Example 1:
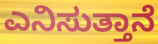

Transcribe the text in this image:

ಎನಿಸುತ್ತಾನೆ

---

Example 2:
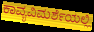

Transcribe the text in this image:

ಕಾವ್ಯವಿಮರ್ಶೆಯಲ್ಲಿ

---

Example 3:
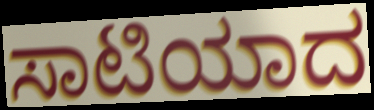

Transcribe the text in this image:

ಸಾಟಿಯಾದ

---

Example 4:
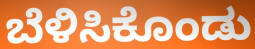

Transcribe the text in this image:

ಬೆಳಿಸಿಕೊಂಡು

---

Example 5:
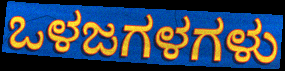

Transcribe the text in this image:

ಒಳಜಗಳಗಳು